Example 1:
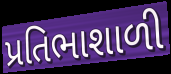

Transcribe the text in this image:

પ્રતિભાશાળી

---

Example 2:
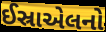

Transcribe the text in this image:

ઈસ્રાએલનો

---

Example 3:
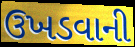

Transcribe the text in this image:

ઉખડવાની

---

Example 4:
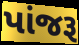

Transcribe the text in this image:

પાંજરૂ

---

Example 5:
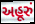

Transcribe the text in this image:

અહૂરું